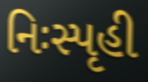
નિઃસ્પૃહી